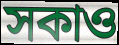
সকাও